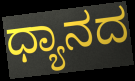
ಧ್ಯಾನದ